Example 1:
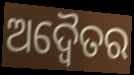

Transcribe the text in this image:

ଅଦ୍ଵୈତର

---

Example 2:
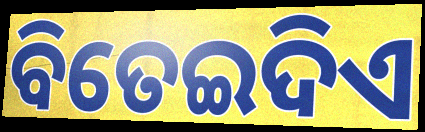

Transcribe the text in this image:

ବିତେଇଦିଏ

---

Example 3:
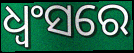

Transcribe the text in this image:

ଧ୍ଵଂସରେ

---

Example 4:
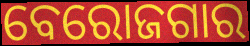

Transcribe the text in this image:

ବେରୋଜଗାର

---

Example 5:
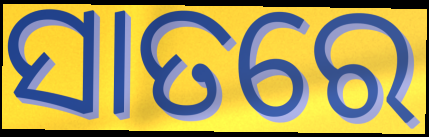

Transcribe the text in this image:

ସାତରେ